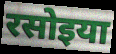
रसोइया